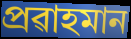
প্ৰৱাহমান